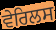
ਵੇਰਿਲਸ